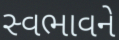
સ્વભાવને